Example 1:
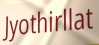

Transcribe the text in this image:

Jyothirllat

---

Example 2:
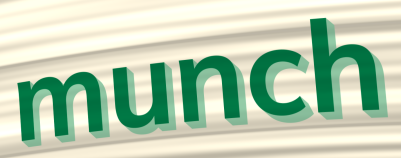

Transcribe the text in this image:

munch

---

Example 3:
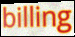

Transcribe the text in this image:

billing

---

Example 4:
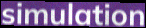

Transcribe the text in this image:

simulation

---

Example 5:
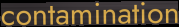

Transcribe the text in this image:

contamination